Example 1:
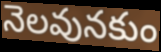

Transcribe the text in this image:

నెలవునకుం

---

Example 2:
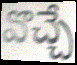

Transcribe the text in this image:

వొచ్చే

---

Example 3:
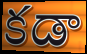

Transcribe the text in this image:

కడా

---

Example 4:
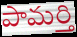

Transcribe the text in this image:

పామర్తి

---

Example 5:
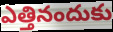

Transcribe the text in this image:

ఎత్తినందుకు